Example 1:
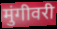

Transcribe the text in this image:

मुंगीवरी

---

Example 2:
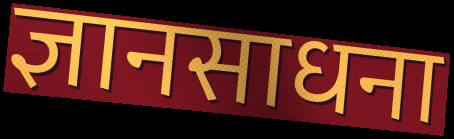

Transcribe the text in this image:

ज्ञानसाधना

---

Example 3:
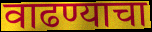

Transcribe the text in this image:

वाढण्याचा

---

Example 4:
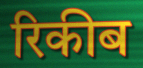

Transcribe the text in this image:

रिकीब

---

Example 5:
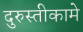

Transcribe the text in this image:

दुरुस्तीकामे